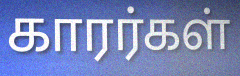
காரர்கள்